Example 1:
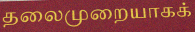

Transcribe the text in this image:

தலைமுறையாகக்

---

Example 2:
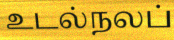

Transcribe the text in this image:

உடல்நலப்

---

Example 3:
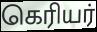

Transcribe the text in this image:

கெரியர்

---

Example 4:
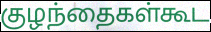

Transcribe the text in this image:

குழந்தைகள்கூட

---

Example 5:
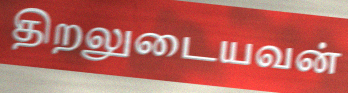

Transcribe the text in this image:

திறலுடையவன்